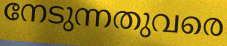
നേടുന്നതുവരെ